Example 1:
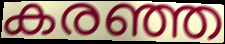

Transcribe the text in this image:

കരഞ്ഞ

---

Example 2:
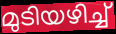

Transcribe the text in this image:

മുടിയഴിച്ച്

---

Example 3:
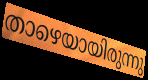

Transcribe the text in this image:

താഴെയായിരുന്നു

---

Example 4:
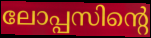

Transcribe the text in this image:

ലോപ്പസിന്റെ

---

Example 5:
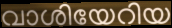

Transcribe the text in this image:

വാശിയേറിയ